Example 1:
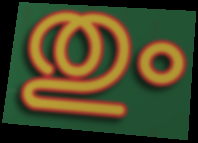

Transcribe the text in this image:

തും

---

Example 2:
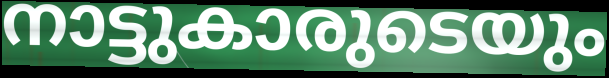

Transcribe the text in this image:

നാട്ടുകാരുടെയും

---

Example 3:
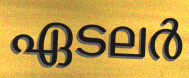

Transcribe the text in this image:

ഏടലർ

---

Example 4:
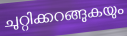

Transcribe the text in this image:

ചുറ്റിക്കറങ്ങുകയും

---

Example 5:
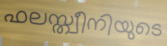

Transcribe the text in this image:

ഫലസ്ത്വീനിയുടെ